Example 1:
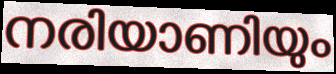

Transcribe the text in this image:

നരിയാണിയും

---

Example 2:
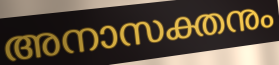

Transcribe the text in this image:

അനാസക്തനും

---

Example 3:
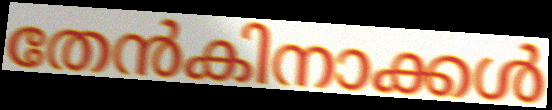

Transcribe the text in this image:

തേൻകിനാക്കൾ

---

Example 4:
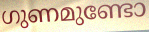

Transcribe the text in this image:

ഗുണമുണ്ടോ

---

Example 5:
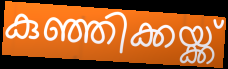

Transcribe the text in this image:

കുഞ്ഞിക്കയ്ക്ക്